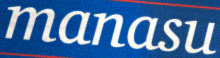
manasu